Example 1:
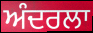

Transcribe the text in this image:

ਅੰਦਰਲਾ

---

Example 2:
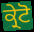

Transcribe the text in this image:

ਕ੍ਰੇਟੋ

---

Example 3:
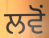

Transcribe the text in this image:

ਲਵੋਂ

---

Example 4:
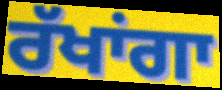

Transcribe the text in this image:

ਰੱਖਾਂਗਾ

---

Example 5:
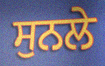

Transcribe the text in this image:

ਸੁਨਲੇ